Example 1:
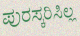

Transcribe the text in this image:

ಪುರಸ್ಕರಿಸಿಲ್ಲ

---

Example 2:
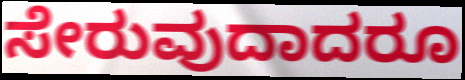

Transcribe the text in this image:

ಸೇರುವುದಾದರೂ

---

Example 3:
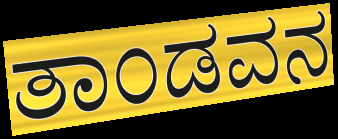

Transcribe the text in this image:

ತಾಂಡವನ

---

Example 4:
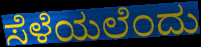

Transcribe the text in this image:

ಸೆಳೆಯಲೆಂದು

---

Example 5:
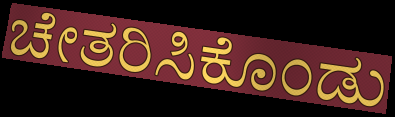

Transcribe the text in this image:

ಚೇತರಿಸಿಕೊಂಡು